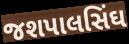
જશપાલસિંઘ